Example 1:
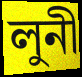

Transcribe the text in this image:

লুনী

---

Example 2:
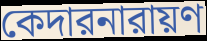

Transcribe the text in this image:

কেদারনারায়ণ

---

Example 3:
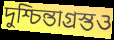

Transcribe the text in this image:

দুশ্চিন্তাগ্রস্তও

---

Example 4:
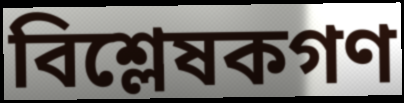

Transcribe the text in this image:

বিশ্লেষকগণ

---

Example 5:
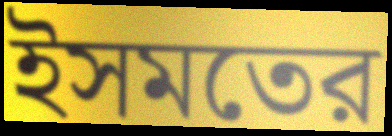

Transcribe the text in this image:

ইসমতের